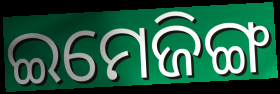
ଇମେଜିଙ୍ଗ